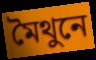
মৈথুনে